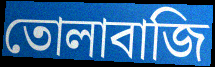
তোলাবাজি